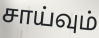
சாய்வும்